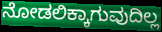
ನೋಡಲಿಕ್ಕಾಗುವುದಿಲ್ಲ